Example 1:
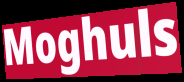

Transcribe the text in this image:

Moghuls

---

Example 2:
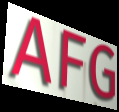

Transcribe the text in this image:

AFG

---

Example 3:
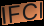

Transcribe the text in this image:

IFCI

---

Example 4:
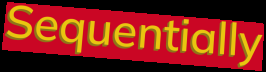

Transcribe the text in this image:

Sequentially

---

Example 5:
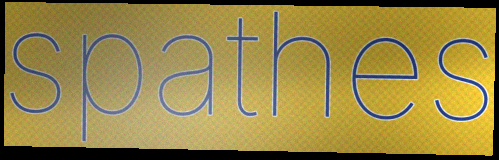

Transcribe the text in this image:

spathes